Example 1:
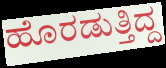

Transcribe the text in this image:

ಹೊರಡುತ್ತಿದ್ದ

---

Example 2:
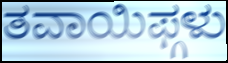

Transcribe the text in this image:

ತವಾಯಿಫ್ಗಳು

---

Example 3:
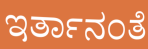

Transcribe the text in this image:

ಇರ್ತಾನಂತೆ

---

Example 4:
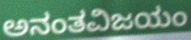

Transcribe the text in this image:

ಅನಂತವಿಜಯಂ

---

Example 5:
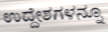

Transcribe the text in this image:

ಉದ್ದೇಶಗಳನ್ನೂ